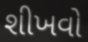
શીખવો